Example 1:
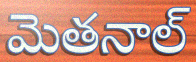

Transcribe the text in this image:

మెతనాల్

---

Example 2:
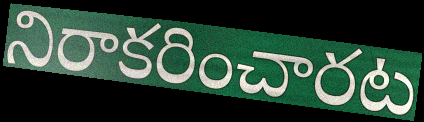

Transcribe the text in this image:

నిరాకరించారట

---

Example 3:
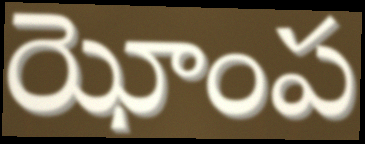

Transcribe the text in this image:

ఝోంప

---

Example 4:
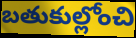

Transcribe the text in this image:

బతుకుల్లోంచి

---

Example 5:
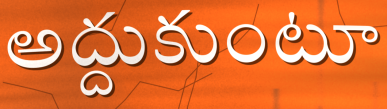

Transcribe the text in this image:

అద్దుకుంటూ